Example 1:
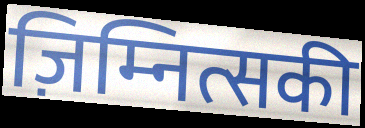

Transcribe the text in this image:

ज़िम्नित्सकी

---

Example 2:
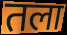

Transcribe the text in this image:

तला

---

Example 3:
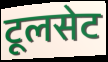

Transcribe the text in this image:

टूलसेट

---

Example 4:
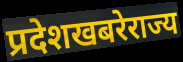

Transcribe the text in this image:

प्रदेशखबरेराज्य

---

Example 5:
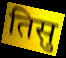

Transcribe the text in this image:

तिसु